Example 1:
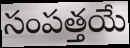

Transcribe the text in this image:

సంపత్తయే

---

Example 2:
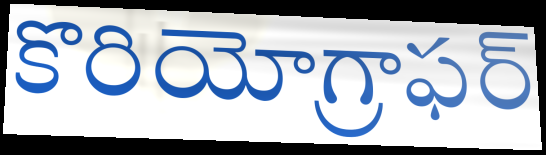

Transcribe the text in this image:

కొరియోగ్రాఫర్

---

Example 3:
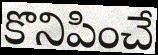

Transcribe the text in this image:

కొనిపించే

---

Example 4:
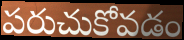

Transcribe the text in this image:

పరుచుకోవడం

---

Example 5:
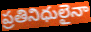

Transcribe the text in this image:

ప్రతినిధులైనా